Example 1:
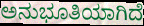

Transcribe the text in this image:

ಅನುಭೂತಿಯಾಗಿದೆ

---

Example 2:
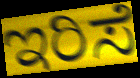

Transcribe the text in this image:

ಇರಿಸೆ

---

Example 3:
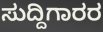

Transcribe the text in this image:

ಸುದ್ದಿಗಾರರ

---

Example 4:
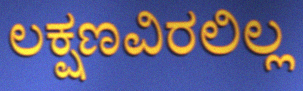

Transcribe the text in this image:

ಲಕ್ಷಣವಿರಲಿಲ್ಲ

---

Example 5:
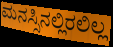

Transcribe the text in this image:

ಮನಸ್ಸಿನಲ್ಲಿರಲಿಲ್ಲ